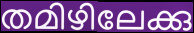
തമിഴിലേക്കു